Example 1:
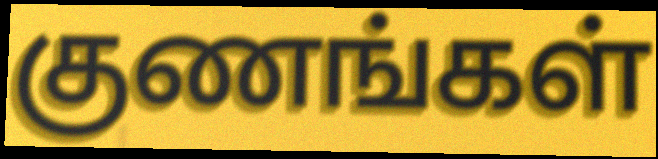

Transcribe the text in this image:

குணங்கள்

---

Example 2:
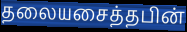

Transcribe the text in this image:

தலையசைத்தபின்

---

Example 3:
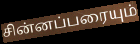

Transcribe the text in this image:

சின்னப்பரையும்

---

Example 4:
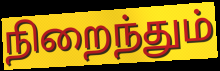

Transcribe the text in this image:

நிறைந்தும்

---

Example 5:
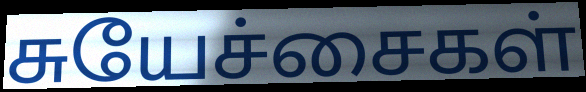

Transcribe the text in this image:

சுயேச்சைகள்